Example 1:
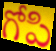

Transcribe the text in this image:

గోపి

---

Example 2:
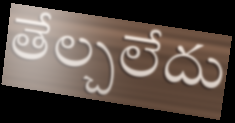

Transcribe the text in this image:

తేల్చలేదు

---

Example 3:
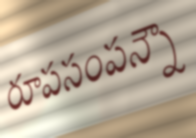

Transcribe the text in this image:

రూపసంపన్నౌ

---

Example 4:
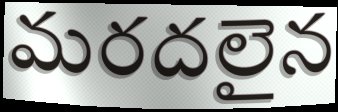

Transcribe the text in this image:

మరదలైన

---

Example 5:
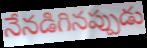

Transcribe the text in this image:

నేనడిగినప్పుడు